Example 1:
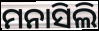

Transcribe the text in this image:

ମନାସିଲି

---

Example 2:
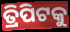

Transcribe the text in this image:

ତ୍ରିପିଟକୁ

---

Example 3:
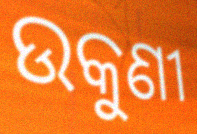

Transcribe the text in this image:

ଉକୁଣୀ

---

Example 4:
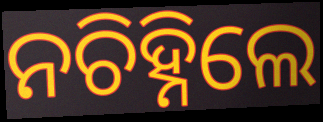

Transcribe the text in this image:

ନଚିହ୍ନିଲେ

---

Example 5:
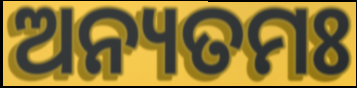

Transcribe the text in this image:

ଅନ୍ୟତମଃ